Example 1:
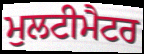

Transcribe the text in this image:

ਮੁਲਟੀਮੈਟਰ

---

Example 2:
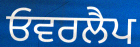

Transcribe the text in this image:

ਓਵਰਲੈਪ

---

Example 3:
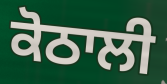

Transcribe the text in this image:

ਕੋਠਾਲੀ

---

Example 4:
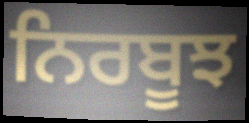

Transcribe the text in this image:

ਨਿਰਬੂਝ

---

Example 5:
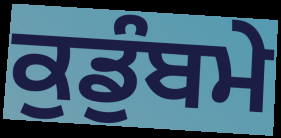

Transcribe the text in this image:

ਕੁਡੁੰਬਮੇ